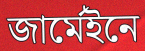
জার্মেইনে